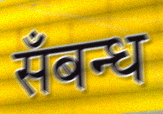
सँबन्ध